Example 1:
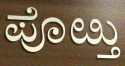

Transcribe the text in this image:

ಪೊೞ್ತು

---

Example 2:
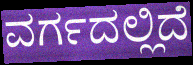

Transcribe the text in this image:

ವರ್ಗದಲ್ಲಿದೆ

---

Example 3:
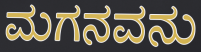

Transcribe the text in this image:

ಮಗನವನು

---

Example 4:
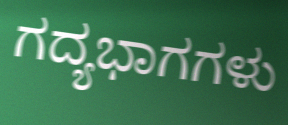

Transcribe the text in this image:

ಗದ್ಯಭಾಗಗಳು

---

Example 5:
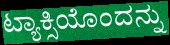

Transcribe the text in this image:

ಟ್ಯಾಕ್ಸಿಯೊಂದನ್ನು